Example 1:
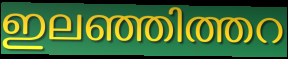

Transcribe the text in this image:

ഇലഞ്ഞിത്തറ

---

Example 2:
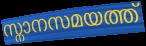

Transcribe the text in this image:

സ്നാനസമയത്ത്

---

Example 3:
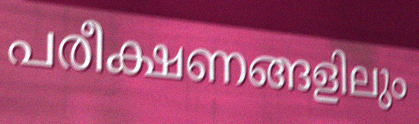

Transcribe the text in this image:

പരീക്ഷണങ്ങളിലും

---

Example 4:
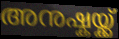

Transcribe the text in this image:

അനുഷ്കയ്ക്ക്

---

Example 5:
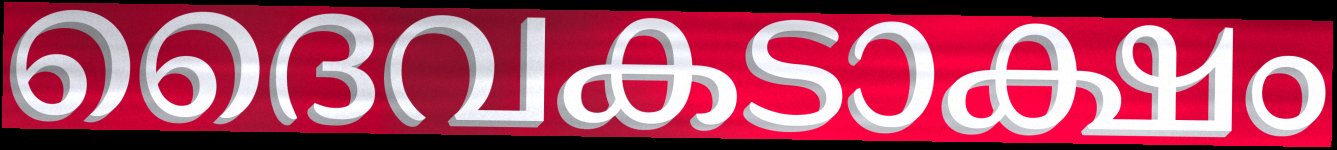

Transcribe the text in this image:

ദൈവകടാക്ഷം